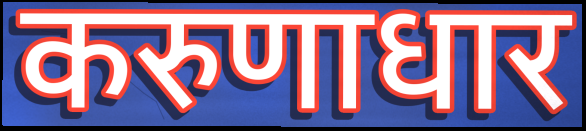
करुणाधार